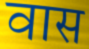
वास